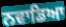
ਨਵਾਡਿਆ